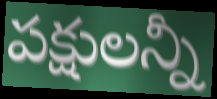
పక్షులన్నీ